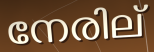
നേരില്